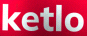
ketlo